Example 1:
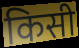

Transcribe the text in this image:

किसी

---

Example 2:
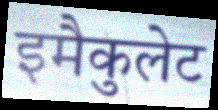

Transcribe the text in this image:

इमैकुलेट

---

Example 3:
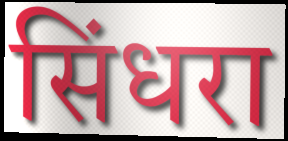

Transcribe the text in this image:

सिंधरा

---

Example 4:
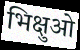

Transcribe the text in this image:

भिक्षुओ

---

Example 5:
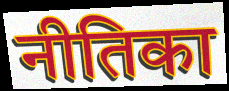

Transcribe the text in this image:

नीतिका